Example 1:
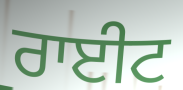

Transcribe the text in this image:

ਰਾਈਟ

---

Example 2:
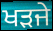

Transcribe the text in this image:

ਖੜਜੇ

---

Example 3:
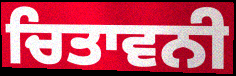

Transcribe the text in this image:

ਚਿਤਾਵਨੀ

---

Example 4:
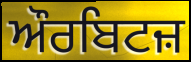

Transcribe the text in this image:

ਔਰਬਿਟਜ਼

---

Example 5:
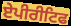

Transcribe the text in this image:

ਏਪੀਰੀਟਿਫ